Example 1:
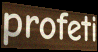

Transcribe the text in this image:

profeti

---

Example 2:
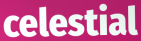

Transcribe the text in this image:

celestial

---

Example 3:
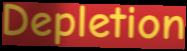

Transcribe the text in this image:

Depletion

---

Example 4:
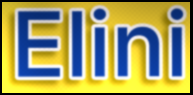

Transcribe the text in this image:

Elini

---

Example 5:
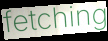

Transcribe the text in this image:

fetching